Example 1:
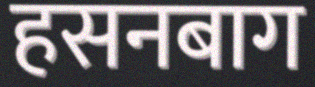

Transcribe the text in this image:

हसनबाग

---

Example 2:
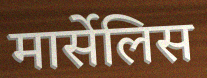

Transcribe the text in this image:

मार्सेलिस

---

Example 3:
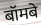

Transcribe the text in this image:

बॉमबे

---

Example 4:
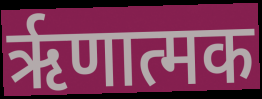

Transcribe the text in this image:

ऋृणात्मक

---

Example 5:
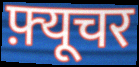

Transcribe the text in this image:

फ़्यूचर